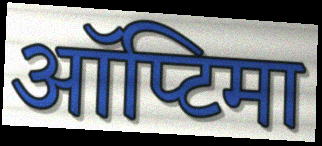
ऑप्टिमा